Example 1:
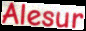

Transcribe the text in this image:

Alesur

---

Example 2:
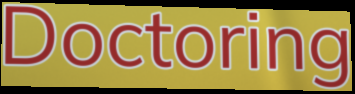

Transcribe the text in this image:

Doctoring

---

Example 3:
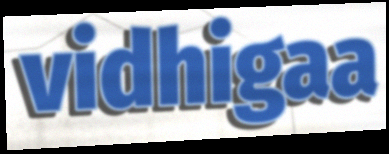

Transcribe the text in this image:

vidhigaa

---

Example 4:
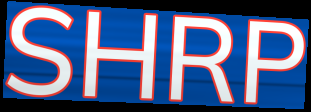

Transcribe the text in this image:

SHRP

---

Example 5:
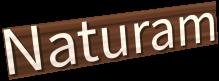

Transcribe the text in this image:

Naturam